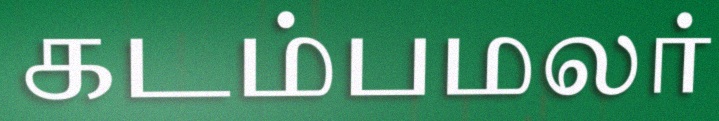
கடம்பமலர்